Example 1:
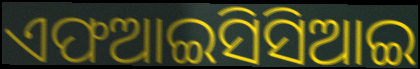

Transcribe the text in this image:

ଏଫଆଇସିସିଆଇ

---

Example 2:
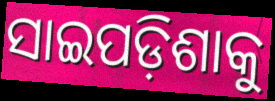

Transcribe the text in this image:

ସାଇପଡ଼ିଶାକୁ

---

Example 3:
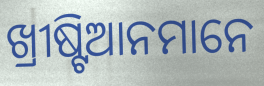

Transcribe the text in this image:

ଖ୍ରୀଷ୍ଟିଆନମାନେ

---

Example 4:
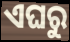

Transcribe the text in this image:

ଏଘରୁ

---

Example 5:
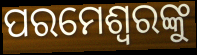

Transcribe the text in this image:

ପରମେଶ୍ୱରଙ୍କୁ